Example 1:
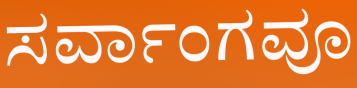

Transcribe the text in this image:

ಸರ್ವಾಂಗವೂ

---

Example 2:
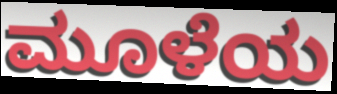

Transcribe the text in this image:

ಮೂಳೆಯ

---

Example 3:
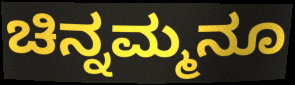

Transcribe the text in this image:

ಚಿನ್ನಮ್ಮನೂ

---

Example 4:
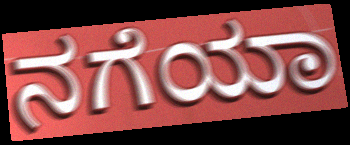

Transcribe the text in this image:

ನಗೆಯಾ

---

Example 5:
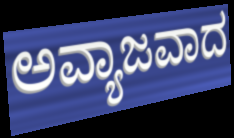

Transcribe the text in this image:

ಅವ್ಯಾಜವಾದ